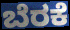
ಬೆರಕೆ